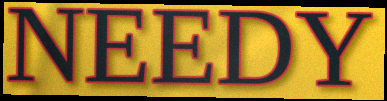
NEEDY